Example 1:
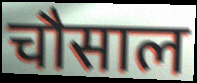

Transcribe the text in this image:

चौसाल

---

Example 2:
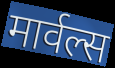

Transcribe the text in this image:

मार्वल्स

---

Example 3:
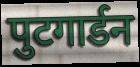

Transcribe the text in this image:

पुटगार्डन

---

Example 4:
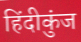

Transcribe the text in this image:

हिंदीकुंज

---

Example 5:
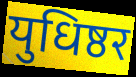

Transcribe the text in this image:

युधिष्ठर